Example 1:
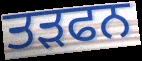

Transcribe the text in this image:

ਤੜਫਨ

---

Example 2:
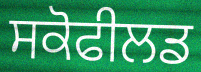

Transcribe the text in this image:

ਸਕੋਫੀਲਡ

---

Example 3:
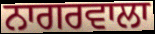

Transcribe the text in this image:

ਨਾਗਰਵਾਲਾ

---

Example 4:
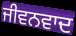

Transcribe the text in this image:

ਜੀਵਨਵਾਦ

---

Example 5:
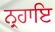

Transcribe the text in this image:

ਨ੍ਰਹਾਇ